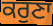
ਕਰੁਣਾ